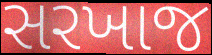
સરખાજ